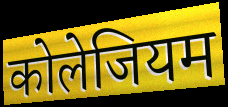
कोलेजियम